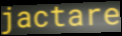
jactare